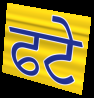
ਫਟੇ